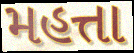
મહત્તા